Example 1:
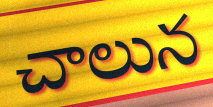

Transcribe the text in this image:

చాలున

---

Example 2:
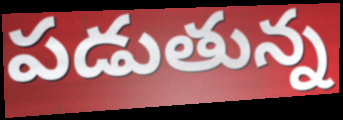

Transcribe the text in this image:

పడుతున్న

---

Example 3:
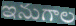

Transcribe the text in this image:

ఇనుగాల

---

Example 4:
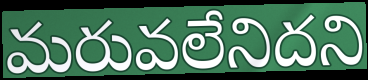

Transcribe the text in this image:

మరువలేనిదని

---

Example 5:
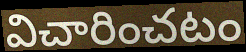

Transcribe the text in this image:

విచారించటం